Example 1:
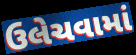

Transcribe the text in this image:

ઉલેચવામાં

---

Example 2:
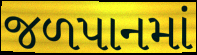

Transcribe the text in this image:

જળપાનમાં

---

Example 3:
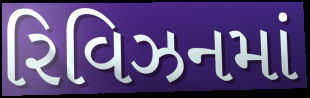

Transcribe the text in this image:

રિવિઝનમાં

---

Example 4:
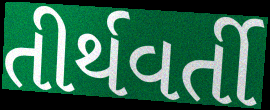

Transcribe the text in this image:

તીર્થવર્તી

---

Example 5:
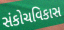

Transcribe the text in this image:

સંકોચવિકાસ